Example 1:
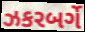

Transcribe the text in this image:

ઝકરબર્ગે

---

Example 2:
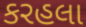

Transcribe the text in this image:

કરહલા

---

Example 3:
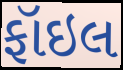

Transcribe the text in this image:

ફૉઇલ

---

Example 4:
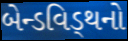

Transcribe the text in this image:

બેન્ડવિડ્થનો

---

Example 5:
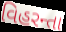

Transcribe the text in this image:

વિહરન્તા